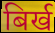
बिर्ख